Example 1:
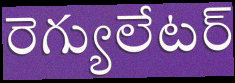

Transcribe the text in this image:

రెగ్యులేటర్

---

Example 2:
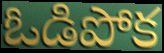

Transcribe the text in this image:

ఓడిపోక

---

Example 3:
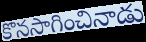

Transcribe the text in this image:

కొనసాగించినాడు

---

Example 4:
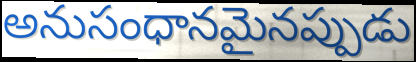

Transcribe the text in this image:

అనుసంధానమైనప్పుడు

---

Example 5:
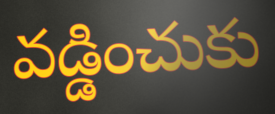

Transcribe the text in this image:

వడ్డించుకు